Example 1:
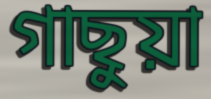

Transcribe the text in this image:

গাছুয়া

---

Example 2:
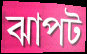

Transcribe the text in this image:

ঝাপট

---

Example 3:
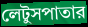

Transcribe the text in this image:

লেটুসপাতার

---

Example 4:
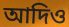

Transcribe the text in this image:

আদিও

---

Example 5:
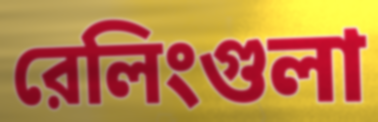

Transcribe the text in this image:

রেলিংগুলা